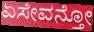
ಏಸೇವನ್ತೋ